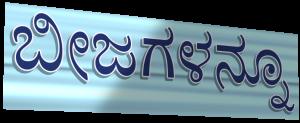
ಬೀಜಗಳನ್ನೂ